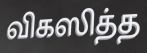
விகஸித்த